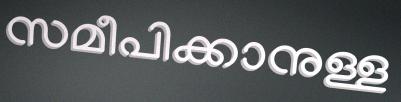
സമീപിക്കാനുള്ള